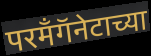
परमँगॅनेटाच्या